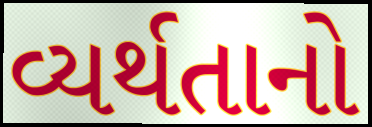
વ્યર્થતાનો